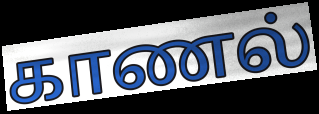
காணல்